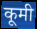
कूमी